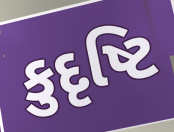
કુદૃષ્ટિ